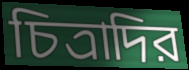
চিত্রাদির